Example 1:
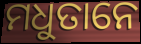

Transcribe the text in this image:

ମଧୁତାନେ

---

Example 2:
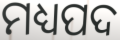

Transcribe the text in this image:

ମଧ୍ୟପଦ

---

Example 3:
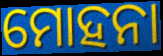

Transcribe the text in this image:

ମୋହନା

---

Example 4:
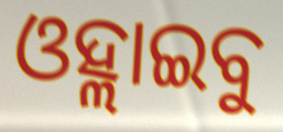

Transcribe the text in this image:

ଓହ୍ଲାଇବୁ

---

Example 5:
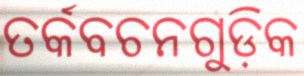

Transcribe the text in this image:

ତର୍କବଚନଗୁଡ଼ିକ